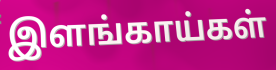
இளங்காய்கள்